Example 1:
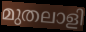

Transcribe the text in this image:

മുതലാളി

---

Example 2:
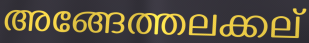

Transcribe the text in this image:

അങ്ങേത്തലക്കല്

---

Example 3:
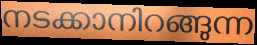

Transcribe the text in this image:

നടക്കാനിറങ്ങുന്ന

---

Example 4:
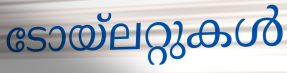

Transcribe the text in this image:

ടോയ്ലറ്റുകൾ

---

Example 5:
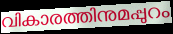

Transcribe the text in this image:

വികാരത്തിനുമപ്പുറം